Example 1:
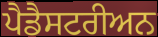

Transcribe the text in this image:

ਪੈਡੈਸਟਰੀਅਨ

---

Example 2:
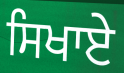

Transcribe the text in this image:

ਸਿਖਾਏ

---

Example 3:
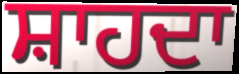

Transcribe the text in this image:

ਸ਼ਾਹਦਾ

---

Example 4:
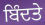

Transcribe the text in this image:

ਬਿੰਦਤੇ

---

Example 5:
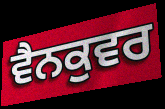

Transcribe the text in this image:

ਵੈਨਕੁਵਰ